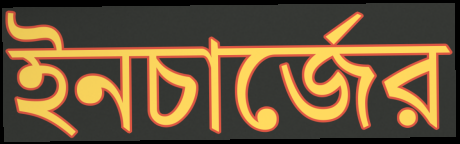
ইনচার্জের